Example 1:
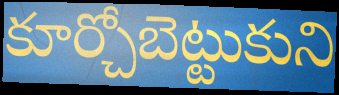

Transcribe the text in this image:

కూర్చోబెట్టుకుని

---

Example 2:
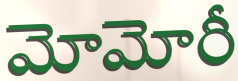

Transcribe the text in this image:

మోమోరీ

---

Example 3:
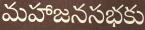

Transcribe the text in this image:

మహాజనసభకు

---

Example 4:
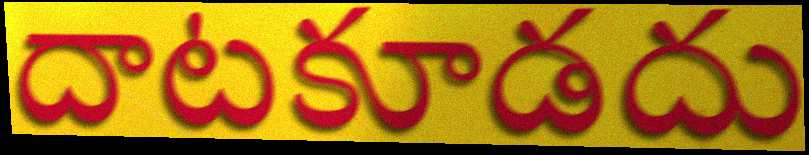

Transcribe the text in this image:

దాటకూడదు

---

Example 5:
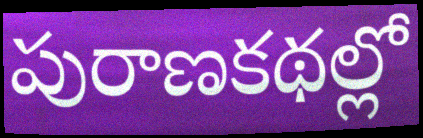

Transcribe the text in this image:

పురాణకథల్లో